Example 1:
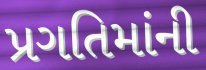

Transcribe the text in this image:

પ્રગતિમાંની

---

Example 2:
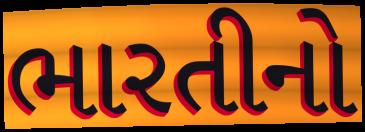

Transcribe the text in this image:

ભારતીનો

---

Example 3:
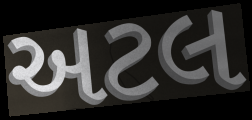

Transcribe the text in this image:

અટલ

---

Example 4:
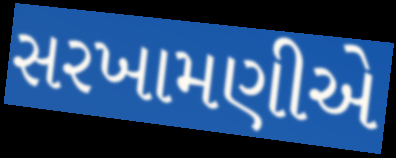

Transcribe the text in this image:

સરખામણીએ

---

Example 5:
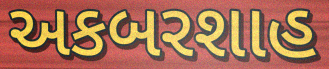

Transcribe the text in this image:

અકબરશાહ